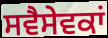
ਸਵੈਸੇਵਕਾਂ